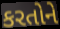
કરતોને